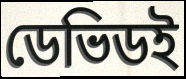
ডেভিডই